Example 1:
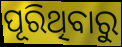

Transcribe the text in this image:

ପୂରିଥିବାରୁ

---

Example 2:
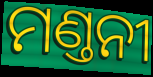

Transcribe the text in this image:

ମଣ୍ତନୀ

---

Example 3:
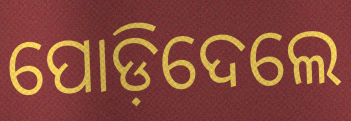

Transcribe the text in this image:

ପୋଡ଼ିଦେଲେ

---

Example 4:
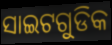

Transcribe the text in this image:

ସାଇଟଗୁଡିକ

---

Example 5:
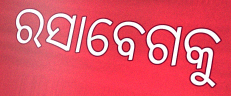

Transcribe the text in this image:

ରସାବେଗକୁ